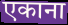
एकाना